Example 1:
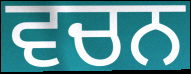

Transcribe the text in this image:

ਵਚਨ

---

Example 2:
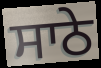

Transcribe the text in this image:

ਸਾਠੇ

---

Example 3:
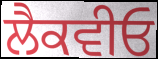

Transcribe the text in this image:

ਲੈਕਵੀਓ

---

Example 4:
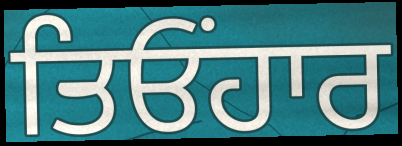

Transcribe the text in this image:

ਤਿਓਂਹਾਰ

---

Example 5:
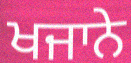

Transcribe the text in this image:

ਖਜਾਨੇ